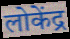
लोकेंद्र